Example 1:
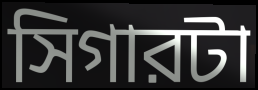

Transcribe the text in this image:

সিগারটা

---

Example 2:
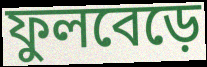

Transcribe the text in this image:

ফুলবেড়ে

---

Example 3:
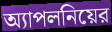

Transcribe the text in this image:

অ্যাপলনিয়ের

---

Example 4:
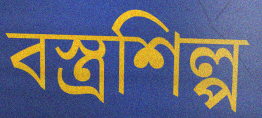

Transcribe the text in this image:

বস্ত্রশিল্প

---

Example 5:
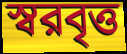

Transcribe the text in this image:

স্বরবৃত্ত